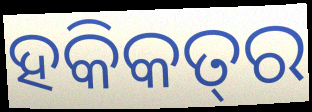
ହକିକତ୍‌ର